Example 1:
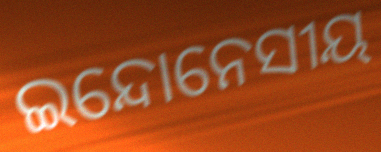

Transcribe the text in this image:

ଇନ୍ଦୋନେସୀୟ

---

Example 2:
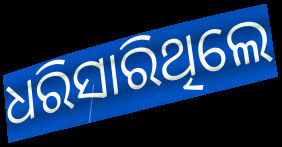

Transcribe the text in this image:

ଧରିସାରିଥିଲେ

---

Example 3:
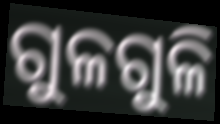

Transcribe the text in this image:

ଗୁଳଗୁଳି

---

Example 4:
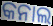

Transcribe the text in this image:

କନାଲ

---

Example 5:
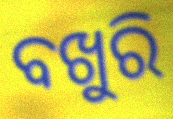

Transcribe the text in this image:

ବଖୁରି